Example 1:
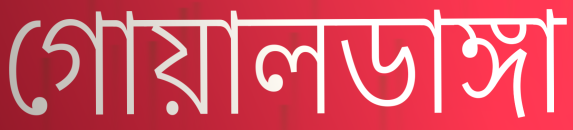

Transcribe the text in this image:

গোয়ালডাঙ্গা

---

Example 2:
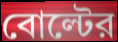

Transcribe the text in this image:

বোল্টের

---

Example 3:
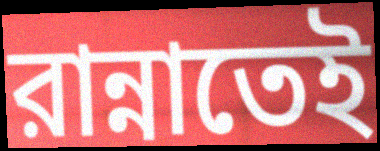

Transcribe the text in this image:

রান্নাতেই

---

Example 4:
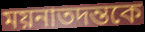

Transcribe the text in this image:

ময়নাতদন্তকে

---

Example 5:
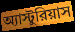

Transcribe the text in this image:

অ্যাস্টুরিয়াস